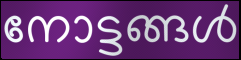
നോട്ടങ്ങൾ